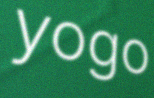
yogo